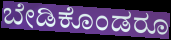
ಬೇಡಿಕೊಂಡರೂ